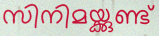
സിനിമയ്ക്കുണ്ട്